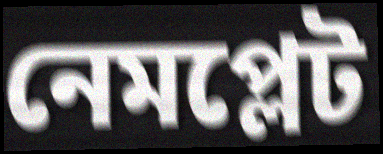
নেমপ্লেট